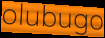
olubugo